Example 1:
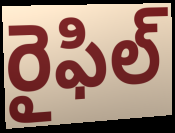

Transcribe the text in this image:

రైఫిల్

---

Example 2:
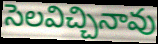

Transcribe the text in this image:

సెలవిచ్చినావు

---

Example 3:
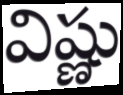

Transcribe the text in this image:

విష్ణు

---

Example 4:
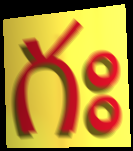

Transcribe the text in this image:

గః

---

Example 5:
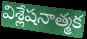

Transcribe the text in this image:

విశ్లేషనాత్మక